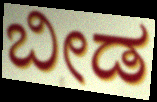
ಬೀಡ